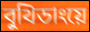
বুথিডাংয়ে